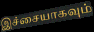
இச்சையாகவும்